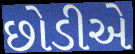
છોડીએ